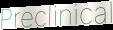
Preclinical